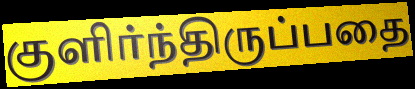
குளிர்ந்திருப்பதை